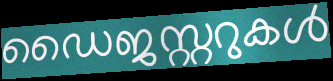
ഡൈജസ്റ്ററുകൾ